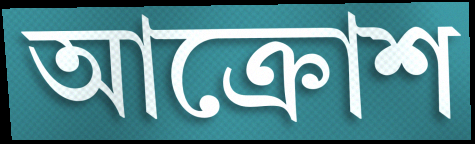
আক্রোশ